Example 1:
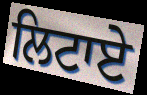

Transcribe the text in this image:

ਲਿਟਾਏ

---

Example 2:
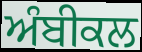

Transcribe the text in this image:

ਅੰਬੀਕਲ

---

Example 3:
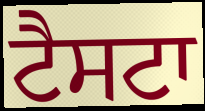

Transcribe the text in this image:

ਟੈਸਟਾ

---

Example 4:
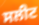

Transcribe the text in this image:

ਸਲੀਟ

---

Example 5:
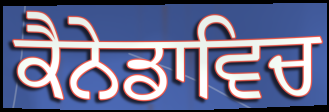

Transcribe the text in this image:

ਕੈਨੇਡਾਵਿਚ